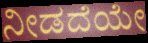
ನೀಡದೆಯೇ